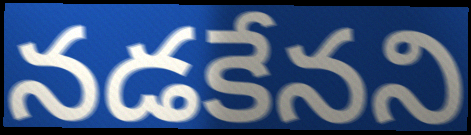
నడకేనని